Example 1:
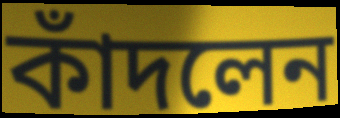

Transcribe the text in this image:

কাঁদলেন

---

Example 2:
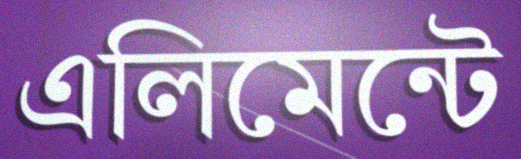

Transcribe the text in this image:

এলিমেন্টে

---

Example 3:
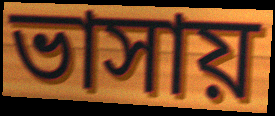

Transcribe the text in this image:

ভাসায়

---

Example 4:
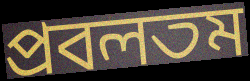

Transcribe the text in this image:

প্রবলতম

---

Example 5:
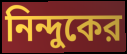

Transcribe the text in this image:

নিন্দুকের